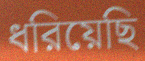
ধরিয়েছি